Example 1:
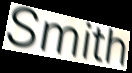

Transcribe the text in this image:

Smith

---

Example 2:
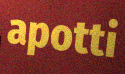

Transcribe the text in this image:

apotti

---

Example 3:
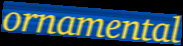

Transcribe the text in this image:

ornamental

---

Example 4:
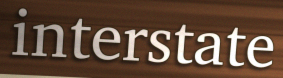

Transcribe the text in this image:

interstate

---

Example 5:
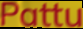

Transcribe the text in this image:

Pattu